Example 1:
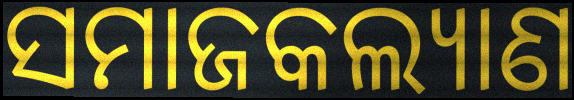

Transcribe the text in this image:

ସମାଜକଲ୍ୟାଣ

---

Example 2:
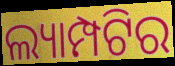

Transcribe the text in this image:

ଲ୍ୟାମ୍ପଟିର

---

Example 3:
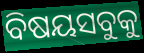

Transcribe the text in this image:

ବିଷୟସବୁକୁ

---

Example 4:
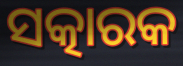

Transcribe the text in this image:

ସତ୍କାରକ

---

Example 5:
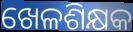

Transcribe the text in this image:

ଖେଳଶିକ୍ଷକ